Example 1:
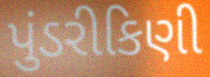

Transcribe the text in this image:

પુંડરીકિણી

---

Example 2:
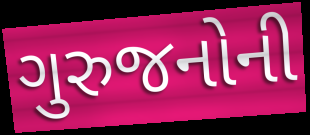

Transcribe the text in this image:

ગુરુજનોની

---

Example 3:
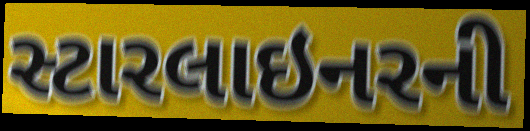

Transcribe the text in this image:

સ્ટારલાઇનરની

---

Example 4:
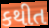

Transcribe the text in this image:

કથીત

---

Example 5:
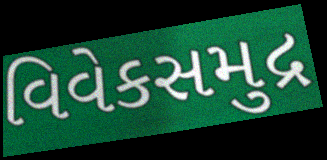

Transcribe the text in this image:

વિવેકસમુદ્ર